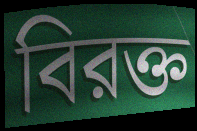
বিরক্ত